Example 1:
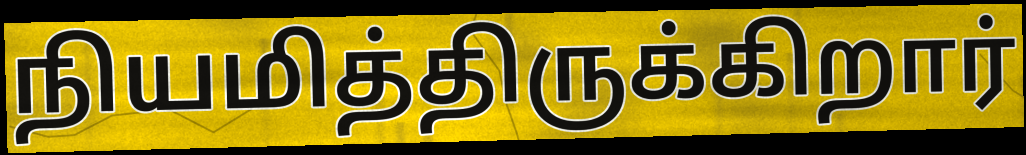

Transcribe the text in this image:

நியமித்திருக்கிறார்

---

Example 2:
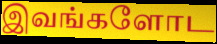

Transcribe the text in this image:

இவங்களோட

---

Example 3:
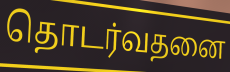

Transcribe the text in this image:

தொடர்வதனை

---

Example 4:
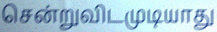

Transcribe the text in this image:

சென்றுவிடமுடியாது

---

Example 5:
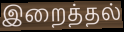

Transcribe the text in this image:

இறைத்தல்